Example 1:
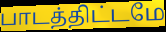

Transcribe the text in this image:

பாடத்திட்டமே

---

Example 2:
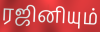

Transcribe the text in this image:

ரஜினியும்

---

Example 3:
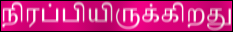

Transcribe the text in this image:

நிரப்பியிருக்கிறது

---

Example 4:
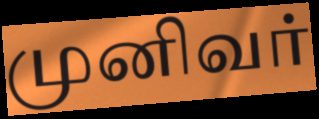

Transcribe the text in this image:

முனிவர்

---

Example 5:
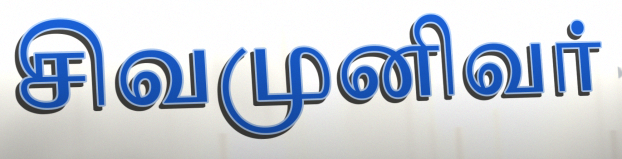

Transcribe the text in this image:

சிவமுனிவர்